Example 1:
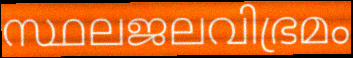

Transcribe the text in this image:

സ്ഥലജലവിഭ്രമം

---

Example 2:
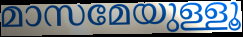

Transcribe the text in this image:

മാസമേയുള്ളൂ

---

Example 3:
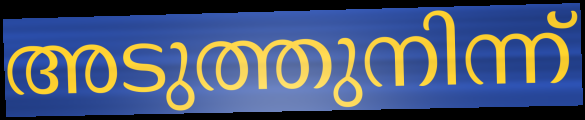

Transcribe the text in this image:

അടുത്തുനിന്ന്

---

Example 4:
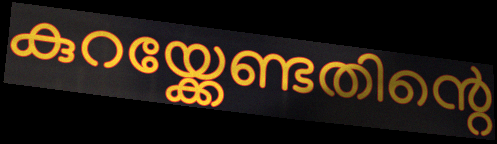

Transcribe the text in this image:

കുറയ്ക്കേണ്ടതിന്റെ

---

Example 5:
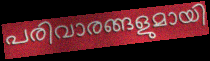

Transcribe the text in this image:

പരിവാരങ്ങളുമായി